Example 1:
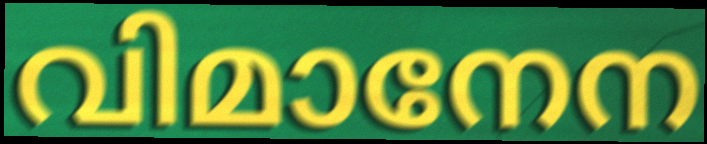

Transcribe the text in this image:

വിമാനേന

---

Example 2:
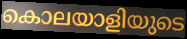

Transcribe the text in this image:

കൊലയാളിയുടെ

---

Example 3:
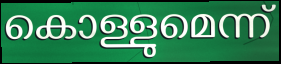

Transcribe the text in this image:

കൊള്ളുമെന്ന്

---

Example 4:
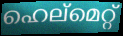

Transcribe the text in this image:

ഹെല്മെറ്റ്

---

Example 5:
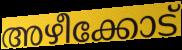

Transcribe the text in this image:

അഴീക്കോട്